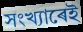
সংখ্যাৰেই